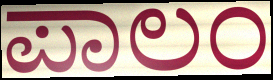
ಪಾಲಂ